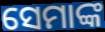
ସେମାଙ୍କ